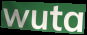
wuta